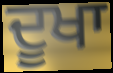
ਦੂਖਾ